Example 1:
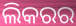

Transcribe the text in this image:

ଲିକରର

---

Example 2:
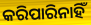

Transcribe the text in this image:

କରିପାରିନାହିଁ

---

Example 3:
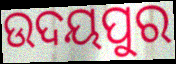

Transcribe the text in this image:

ଉଦୟପୁର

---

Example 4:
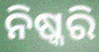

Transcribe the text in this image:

ନିଷ୍କରି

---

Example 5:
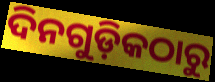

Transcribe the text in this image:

ଦିନଗୁଡ଼ିକଠାରୁ